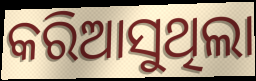
କରିଆସୁଥିଲା